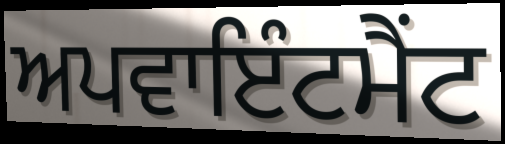
ਅਪਵਾਇੰਟਮੈਂਟ